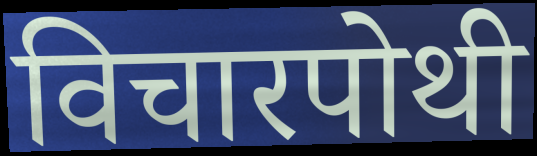
विचारपोथी